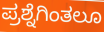
ಪ್ರಶ್ನೆಗಿಂತಲೂ